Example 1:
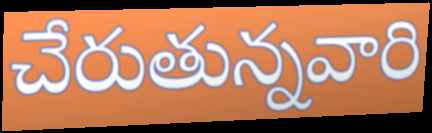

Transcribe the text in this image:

చేరుతున్నవారి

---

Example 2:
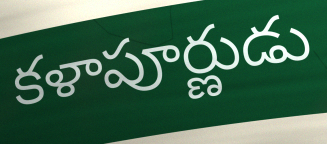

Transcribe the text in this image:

కళాపూర్ణుడు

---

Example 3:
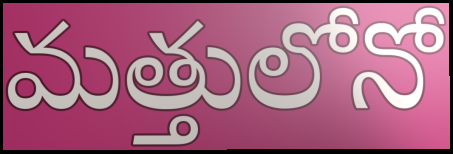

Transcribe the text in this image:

మత్తులోనో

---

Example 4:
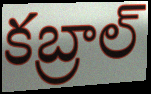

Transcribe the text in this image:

కబ్రాల్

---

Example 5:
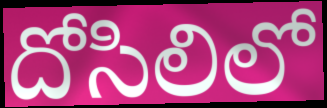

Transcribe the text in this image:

దోసిలిలో